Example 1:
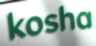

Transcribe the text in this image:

kosha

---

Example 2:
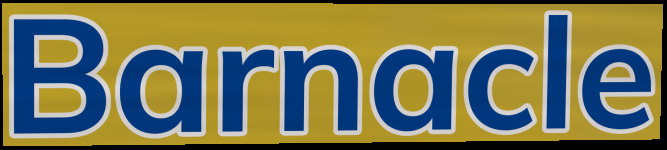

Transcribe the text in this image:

Barnacle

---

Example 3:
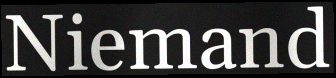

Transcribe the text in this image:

Niemand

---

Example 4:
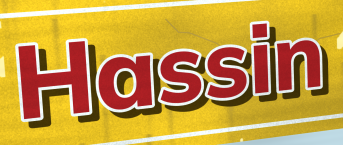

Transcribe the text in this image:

Hassin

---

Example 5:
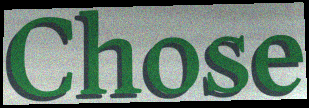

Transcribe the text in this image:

Chose